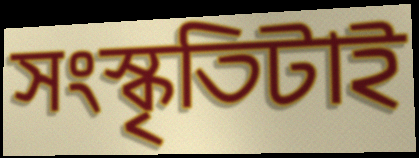
সংস্কৃতিটাই